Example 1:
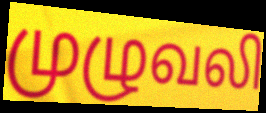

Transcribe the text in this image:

முழுவலி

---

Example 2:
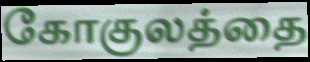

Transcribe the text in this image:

கோகுலத்தை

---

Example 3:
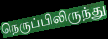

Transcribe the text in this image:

நெருப்பிலிருந்து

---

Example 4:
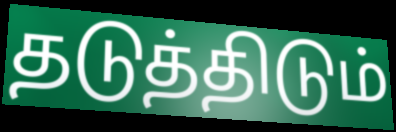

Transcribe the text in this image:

தடுத்திடும்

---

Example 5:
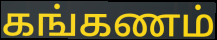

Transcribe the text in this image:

கங்கணம்